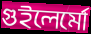
গুইলের্মো